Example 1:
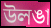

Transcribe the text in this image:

উলঙা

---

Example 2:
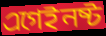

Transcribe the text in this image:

এগেইনষ্ট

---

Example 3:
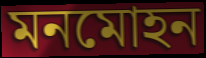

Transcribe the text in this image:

মনমোহন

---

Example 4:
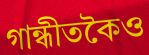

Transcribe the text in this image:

গান্ধীতকৈও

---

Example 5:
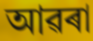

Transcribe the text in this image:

আৱৰা